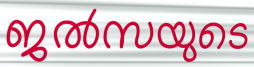
ജൽസയുടെ